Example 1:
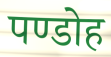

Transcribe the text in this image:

पण्डोह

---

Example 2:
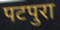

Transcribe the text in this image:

पटपुरा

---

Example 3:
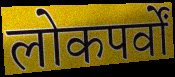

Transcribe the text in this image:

लोकपर्वों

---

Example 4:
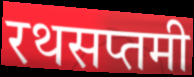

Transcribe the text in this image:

रथसप्तमी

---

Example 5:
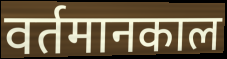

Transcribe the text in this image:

वर्तमानकाल